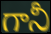
గానీ